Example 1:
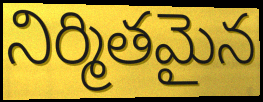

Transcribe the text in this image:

నిర్మితమైన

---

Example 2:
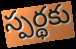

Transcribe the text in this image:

స్పర్థకు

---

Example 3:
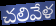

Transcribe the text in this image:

చలివేళ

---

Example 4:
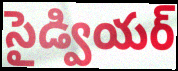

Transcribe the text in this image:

సైడ్వియర్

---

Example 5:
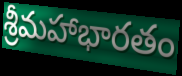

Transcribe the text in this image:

శ్రీమహాభారతం